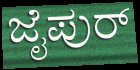
ಜೈಪುರ್